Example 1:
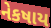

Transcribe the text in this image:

નેકષાય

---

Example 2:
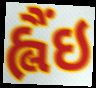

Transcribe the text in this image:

હ્લૈંઇ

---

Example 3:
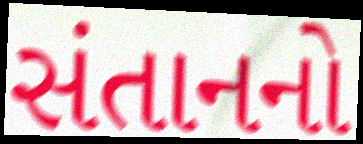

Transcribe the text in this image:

સંતાનનો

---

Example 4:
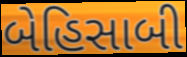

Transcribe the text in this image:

બેહિસાબી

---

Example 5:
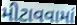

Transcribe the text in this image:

મીટાવવામાં